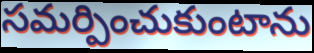
సమర్పించుకుంటాను